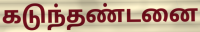
கடுந்தண்டனை